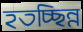
হতচ্ছিন্ন